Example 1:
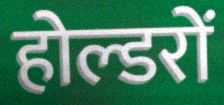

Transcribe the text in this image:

होल्‍डरों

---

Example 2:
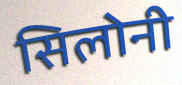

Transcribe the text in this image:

सिलोनी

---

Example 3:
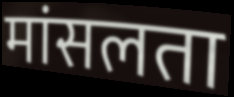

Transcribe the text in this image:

मांसलता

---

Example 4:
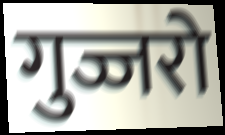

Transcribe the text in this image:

गुज्जरो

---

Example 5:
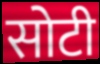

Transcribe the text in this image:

सोटी